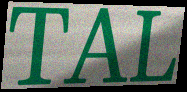
TAL